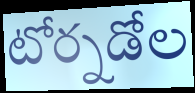
టోర్నడోల